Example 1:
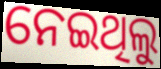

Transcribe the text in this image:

ନେଇଥିଲୁ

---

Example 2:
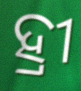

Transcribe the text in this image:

ହ୍ରୀ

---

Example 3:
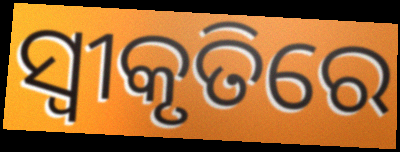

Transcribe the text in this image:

ସ୍ବୀକୃତିରେ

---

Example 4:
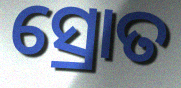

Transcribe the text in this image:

ସ୍ରୋତ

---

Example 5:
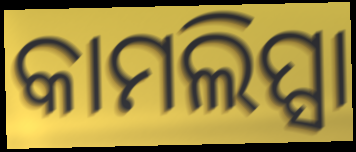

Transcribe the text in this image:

କାମଲିପ୍ସା